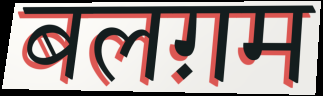
बलग़म